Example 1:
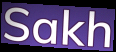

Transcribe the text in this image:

Sakh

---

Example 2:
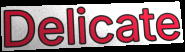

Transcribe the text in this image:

Delicate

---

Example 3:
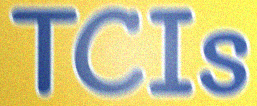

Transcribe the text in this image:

TCIs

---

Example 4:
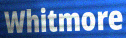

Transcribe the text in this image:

Whitmore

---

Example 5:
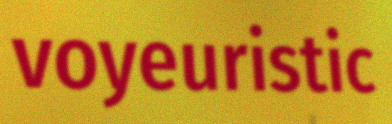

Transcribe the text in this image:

voyeuristic